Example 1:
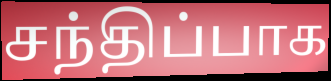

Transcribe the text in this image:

சந்திப்பாக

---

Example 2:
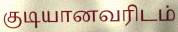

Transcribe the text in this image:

குடியானவரிடம்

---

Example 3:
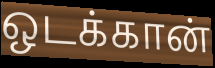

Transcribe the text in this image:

ஒடக்கான்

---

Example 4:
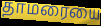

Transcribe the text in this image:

தாமரையை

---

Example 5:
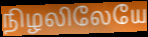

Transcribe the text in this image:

நிழலிலேயே